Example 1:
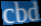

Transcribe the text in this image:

cbd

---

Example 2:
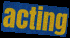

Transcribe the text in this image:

acting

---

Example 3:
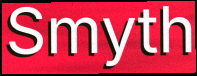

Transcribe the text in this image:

Smyth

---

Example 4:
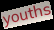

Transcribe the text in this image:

youths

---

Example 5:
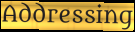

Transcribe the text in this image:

Addressing